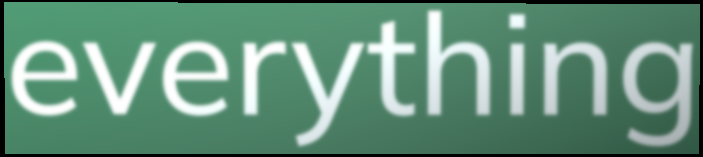
everything